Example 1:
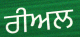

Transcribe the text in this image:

ਰੀਅਲ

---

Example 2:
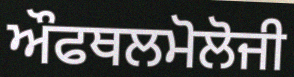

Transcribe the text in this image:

ਔਫਥਲਮੋਲੋਜੀ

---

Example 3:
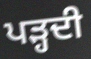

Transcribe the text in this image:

ਪੜ੍ਹਦੀ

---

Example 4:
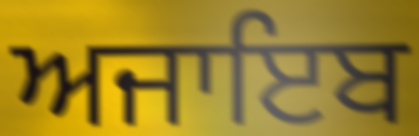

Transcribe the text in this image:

ਅਜਾਇਬ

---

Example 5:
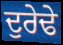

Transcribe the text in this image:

ਦੁਰੇਢੇ